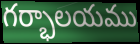
గర్భాలయము